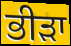
ਭੀੜਾ